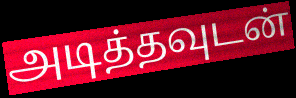
அடித்தவுடன்